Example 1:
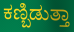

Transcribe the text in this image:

ಕಣ್ಬಿಡುತ್ತಾ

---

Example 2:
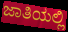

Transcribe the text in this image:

ಜಾತಿಯಲ್ಲಿ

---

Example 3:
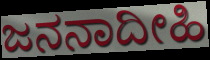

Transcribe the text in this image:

ಜನನಾದೀಹಿ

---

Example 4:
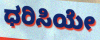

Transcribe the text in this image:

ಧರಿಸಿಯೇ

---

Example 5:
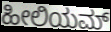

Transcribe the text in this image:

ಹೀಲಿಯಮ್